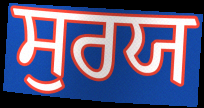
ਸੁਰਯ